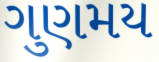
ગુણમય